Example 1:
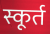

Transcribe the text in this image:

स्कूर्त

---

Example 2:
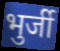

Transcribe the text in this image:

भुर्जी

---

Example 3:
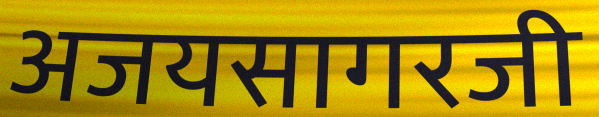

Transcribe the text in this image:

अजयसागरजी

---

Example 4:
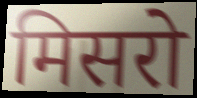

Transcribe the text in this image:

मिसरो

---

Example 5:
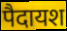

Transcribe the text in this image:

पैदायश